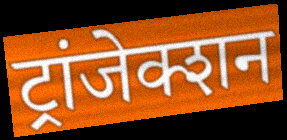
ट्रांजेक्शन